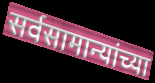
सर्वसामान्यांच्या